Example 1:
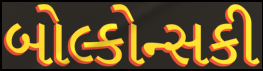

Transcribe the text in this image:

બોલ્કોન્સકી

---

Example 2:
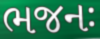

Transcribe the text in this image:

ભજનઃ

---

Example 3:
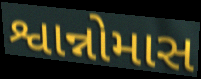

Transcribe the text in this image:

શ્વાન્નોમાસ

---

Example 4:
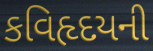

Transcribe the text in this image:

કવિહૃદયની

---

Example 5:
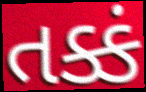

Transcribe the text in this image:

તક્કં